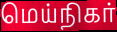
மெய்நிகர்